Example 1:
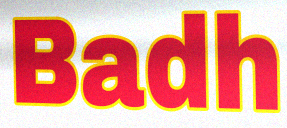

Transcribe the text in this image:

Badh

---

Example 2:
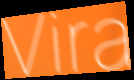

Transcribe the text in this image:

Vira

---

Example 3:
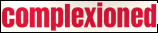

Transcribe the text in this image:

complexioned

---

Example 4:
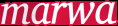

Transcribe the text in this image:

marwa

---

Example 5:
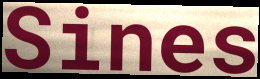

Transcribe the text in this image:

Sines